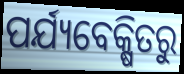
ପର୍ଯ୍ୟବେକ୍ଷିତରୁ